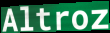
Altroz